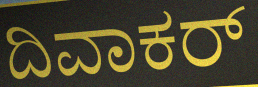
ದಿವಾಕರ್